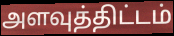
அளவுத்திட்டம்